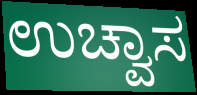
ಉಚ್ವಾಸ